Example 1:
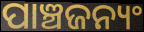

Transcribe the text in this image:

ପାଞ୍ଚଜନ୍ୟଂ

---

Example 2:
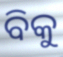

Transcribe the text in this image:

ବିକୁ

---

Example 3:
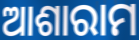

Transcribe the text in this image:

ଆଶାରାମ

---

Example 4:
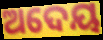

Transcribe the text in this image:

ଅଦେୟ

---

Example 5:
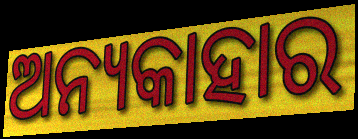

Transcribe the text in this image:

ଅନ୍ୟକାହାର